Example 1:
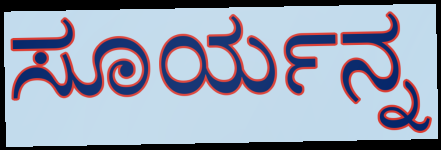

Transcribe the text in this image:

ಸೂರ್ಯನ್ನ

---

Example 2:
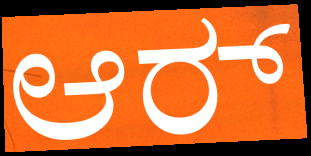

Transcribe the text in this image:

ಆರ್‍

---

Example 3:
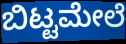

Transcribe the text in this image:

ಬಿಟ್ಟಮೇಲೆ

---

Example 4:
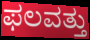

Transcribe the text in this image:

ಫಲವತ್ತು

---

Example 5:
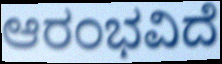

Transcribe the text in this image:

ಆರಂಭವಿದೆ